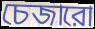
চেজারো